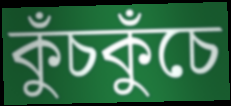
কুঁচকুঁচে